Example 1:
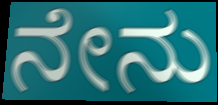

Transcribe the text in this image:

ನೇನು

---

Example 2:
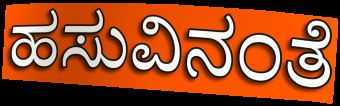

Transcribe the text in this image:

ಹಸುವಿನಂತೆ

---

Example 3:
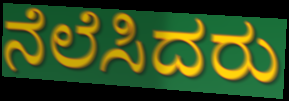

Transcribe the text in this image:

ನೆಲೆಸಿದರು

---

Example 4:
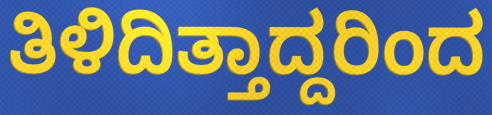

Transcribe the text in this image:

ತಿಳಿದಿತ್ತಾದ್ದರಿಂದ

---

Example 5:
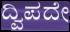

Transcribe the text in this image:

ದ್ವಿಪದೇ